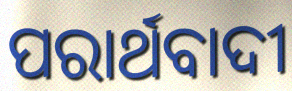
ପରାର୍ଥବାଦୀ